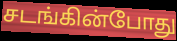
சடங்கின்போது